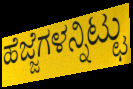
ಹೆಜ್ಜೆಗಳನ್ನಿಟ್ಟು